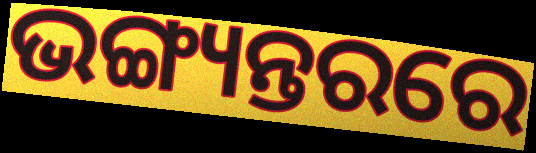
ଭଙ୍ଗ୍ୟନ୍ତରରେ